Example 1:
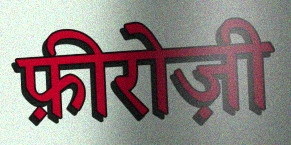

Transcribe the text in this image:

फ़ीरोज़ी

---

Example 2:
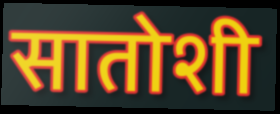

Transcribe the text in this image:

सातोशी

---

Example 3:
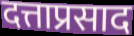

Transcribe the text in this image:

दत्ताप्रसाद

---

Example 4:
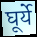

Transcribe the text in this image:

घूर्ये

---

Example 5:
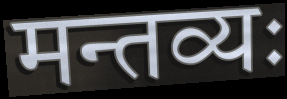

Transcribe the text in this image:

मन्तव्यः